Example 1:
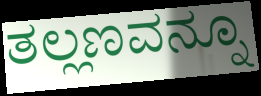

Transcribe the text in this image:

ತಲ್ಲಣವನ್ನೂ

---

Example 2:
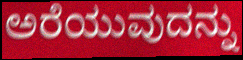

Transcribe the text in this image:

ಅರೆಯುವುದನ್ನು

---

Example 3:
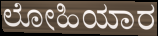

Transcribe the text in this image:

ಲೋಹಿಯಾರ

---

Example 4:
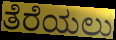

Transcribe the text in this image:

ತೆರೆಯಲು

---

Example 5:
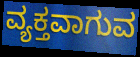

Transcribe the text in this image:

ವ್ಯಕ್ತವಾಗುವ